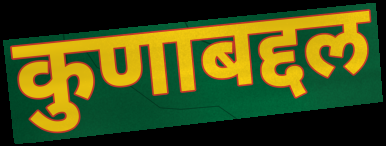
कुणाबद्दल